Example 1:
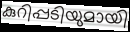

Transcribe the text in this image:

കുറിപ്പടിയുമായി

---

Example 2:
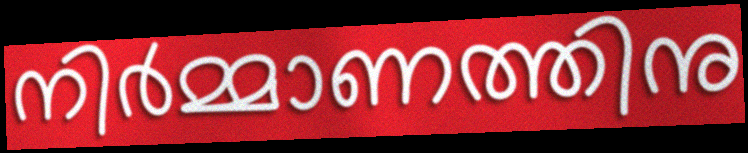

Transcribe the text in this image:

നിർമ്മാണത്തിനു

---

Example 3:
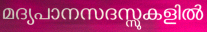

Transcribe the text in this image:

മദ്യപാനസദസ്സുകളിൽ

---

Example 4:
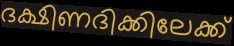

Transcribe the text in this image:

ദക്ഷിണദിക്കിലേക്ക്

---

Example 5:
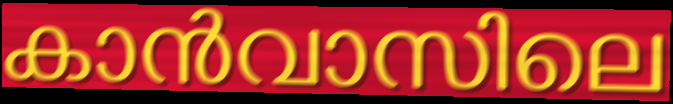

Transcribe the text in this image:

കാൻവാസിലെ